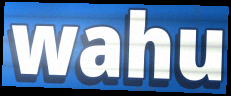
wahu